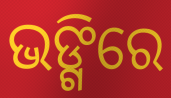
ଭଙ୍ଗିରେ